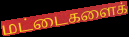
மட்டைகளைக்